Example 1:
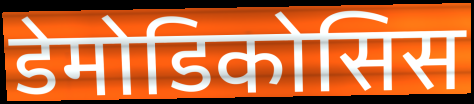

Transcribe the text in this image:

डेमोडिकोसिस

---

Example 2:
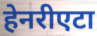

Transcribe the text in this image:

हेनरीएटा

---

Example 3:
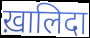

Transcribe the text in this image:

ख़ालिदा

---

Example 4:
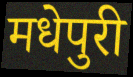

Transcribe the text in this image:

मधेपुरी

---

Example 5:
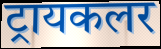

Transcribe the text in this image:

ट्रायकलर